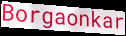
Borgaonkar